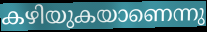
കഴിയുകയാണെന്നു